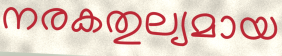
നരകതുല്യമായ